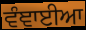
ਵੰਞਾਈਆ